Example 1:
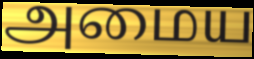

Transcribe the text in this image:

அமைய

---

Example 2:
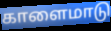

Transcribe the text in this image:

காளைமாடு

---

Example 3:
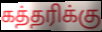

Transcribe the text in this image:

கத்தரிக்கு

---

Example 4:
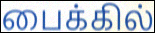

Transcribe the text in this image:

பைக்கில்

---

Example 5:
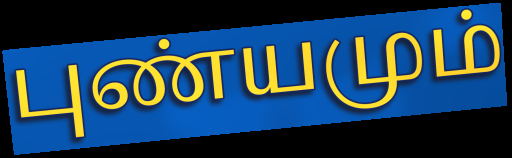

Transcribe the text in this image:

புண்யமும்